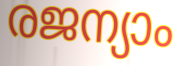
രജന്യാം